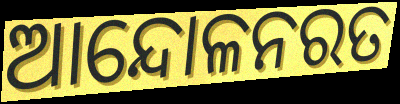
ଆନ୍ଦୋଳନରତ